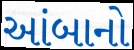
આંબાનો